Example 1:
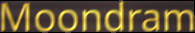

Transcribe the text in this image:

Moondram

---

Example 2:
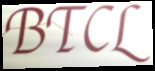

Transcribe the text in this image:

BTCL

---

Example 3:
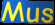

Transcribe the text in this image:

Mus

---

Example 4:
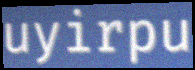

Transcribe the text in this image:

uyirpu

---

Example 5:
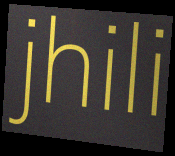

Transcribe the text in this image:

jhili